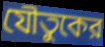
যৌতুকের